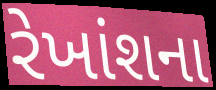
રેખાંશના